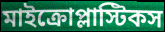
মাইক্রোপ্লাস্টিকস